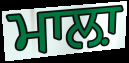
ਮਾਲ਼ਾ